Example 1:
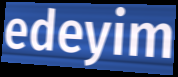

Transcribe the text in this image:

edeyim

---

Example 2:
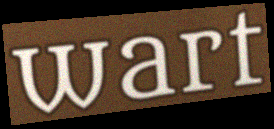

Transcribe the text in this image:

wart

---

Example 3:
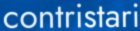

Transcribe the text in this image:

contristari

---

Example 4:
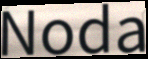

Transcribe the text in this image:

Noda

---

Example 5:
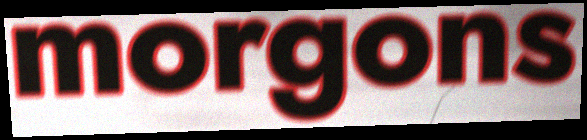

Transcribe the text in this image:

morgons